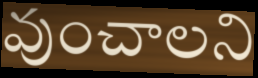
వుంచాలని